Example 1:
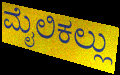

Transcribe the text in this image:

ಮೈಲಿಕಲ್ಲು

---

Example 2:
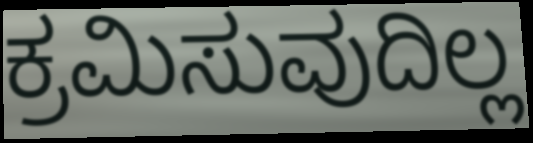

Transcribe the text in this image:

ಕ್ರಮಿಸುವುದಿಲ್ಲ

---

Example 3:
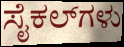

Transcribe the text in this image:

ಸೈಕಲ್‌ಗಳು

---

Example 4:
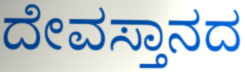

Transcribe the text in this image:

ದೇವಸ್ತಾನದ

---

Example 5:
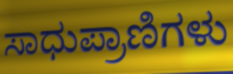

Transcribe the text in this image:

ಸಾಧುಪ್ರಾಣಿಗಳು